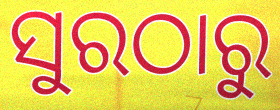
ସୁରଠାରୁ